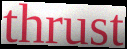
thrust